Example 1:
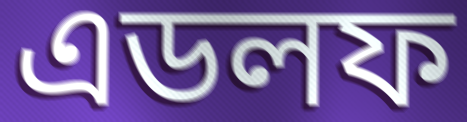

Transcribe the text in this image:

এডলফ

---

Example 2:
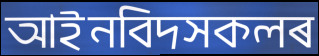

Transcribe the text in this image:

আইনবিদসকলৰ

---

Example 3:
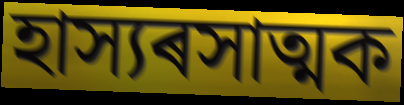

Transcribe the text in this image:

হাস্যৰসাত্মক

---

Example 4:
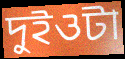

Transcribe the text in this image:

দুইওটা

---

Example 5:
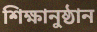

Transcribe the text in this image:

শিক্ষানুষ্ঠান